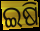
ଇଷି